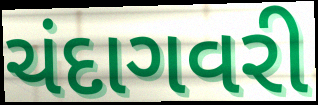
ચંદાગવરી